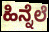
ಹಿನ್ನೆಲೆ